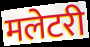
मलेटरी